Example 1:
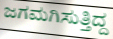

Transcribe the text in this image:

ಜಗಮಗಿಸುತ್ತಿದ್ದ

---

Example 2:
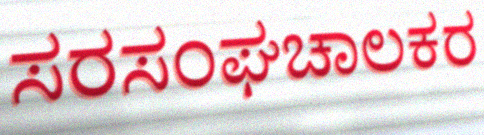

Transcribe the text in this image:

ಸರಸಂಘಚಾಲಕರ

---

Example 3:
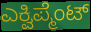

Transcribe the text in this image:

ಎಕ್ವಿಪ್ಮೆಂಟ್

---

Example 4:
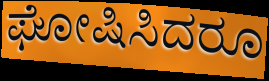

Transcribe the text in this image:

ಘೋಷಿಸಿದರೂ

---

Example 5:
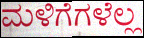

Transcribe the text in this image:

ಮಳಿಗೆಗಳೆಲ್ಲ